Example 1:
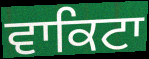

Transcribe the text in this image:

ਵਾਕਿਟਾ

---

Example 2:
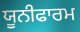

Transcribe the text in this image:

ਯੂਨੀਫਾਰਮ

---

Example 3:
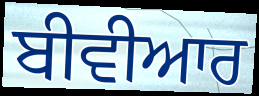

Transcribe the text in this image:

ਬੀਵੀਆਰ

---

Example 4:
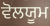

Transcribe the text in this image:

ਵੋਲਯੂਮ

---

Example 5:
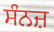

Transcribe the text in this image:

ਸੰਨਜ਼